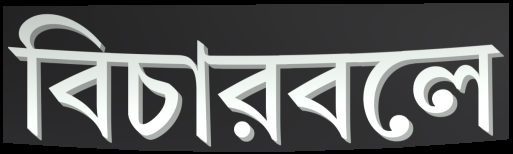
বিচারবলে